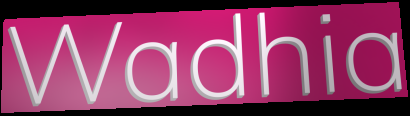
Wadhia